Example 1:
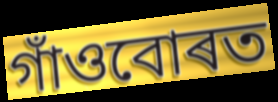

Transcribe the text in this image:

গাঁওবোৰত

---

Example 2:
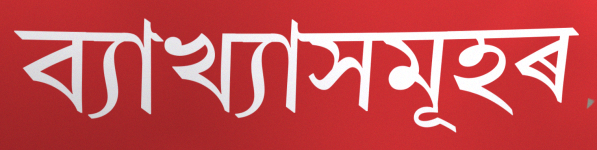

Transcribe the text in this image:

ব্যাখ্যাসমূহৰ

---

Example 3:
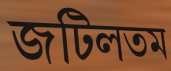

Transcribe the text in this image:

জটিলতম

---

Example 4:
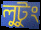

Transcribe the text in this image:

লুটুং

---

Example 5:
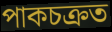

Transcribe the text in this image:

পাকচক্ৰত